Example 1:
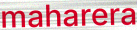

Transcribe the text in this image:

maharera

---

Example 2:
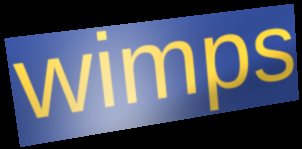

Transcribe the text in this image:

wimps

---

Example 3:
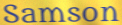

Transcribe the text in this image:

Samson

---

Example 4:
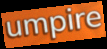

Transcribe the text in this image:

umpire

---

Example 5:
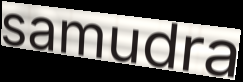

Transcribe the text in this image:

samudra